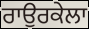
ਰਾਉਰਕੇਲਾ